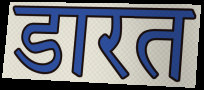
डारत